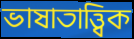
ভাষাতাত্ত্বিক